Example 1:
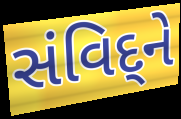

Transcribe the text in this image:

સંવિદ્‌ને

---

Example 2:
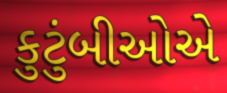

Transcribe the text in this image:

કુટુંબીઓએ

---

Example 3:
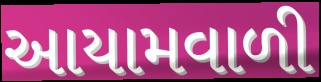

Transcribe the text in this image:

આયામવાળી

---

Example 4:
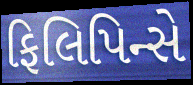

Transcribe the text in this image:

ફિલિપિન્સે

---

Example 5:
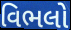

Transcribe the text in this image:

વિભલો